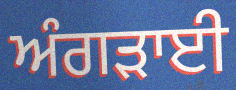
ਅੰਗੜਾਈ